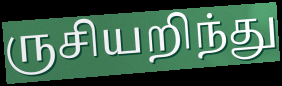
ருசியறிந்து